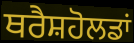
ਥਰੈਸ਼ਹੋਲਡਾਂ